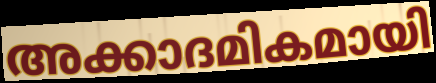
അക്കാദമികമായി